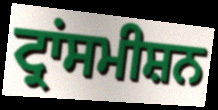
ਟ੍ਰਾਂਸਮੀਸ਼ਨ